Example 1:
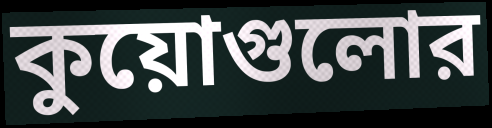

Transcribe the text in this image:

কুয়োগুলোর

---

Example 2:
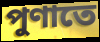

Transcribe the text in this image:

পুণাতে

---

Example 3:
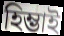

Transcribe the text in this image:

হিম্ভাই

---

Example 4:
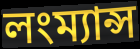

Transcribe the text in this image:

লংম্যান্স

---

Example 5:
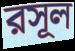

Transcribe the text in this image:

রসূল